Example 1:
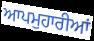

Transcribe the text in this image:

ਆਪਮੁਹਾਰੀਆਂ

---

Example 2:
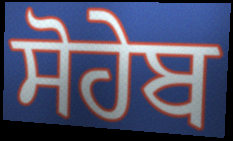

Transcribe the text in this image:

ਸੋਹੇਬ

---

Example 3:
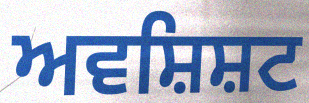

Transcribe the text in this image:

ਅਵਸ਼ਿਸ਼ਟ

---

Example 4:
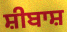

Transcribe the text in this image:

ਸ਼ੀਬਾਸ਼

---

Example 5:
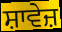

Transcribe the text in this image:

ਸ਼ਾਵੇਜ਼